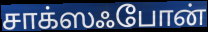
சாக்ஸஃபோன்